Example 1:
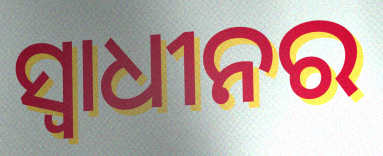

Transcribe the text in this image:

ସ୍ୱାଧୀନର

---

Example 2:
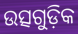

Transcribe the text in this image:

ଉତ୍ସଗୁଡ଼ିକ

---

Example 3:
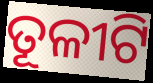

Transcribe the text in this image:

ତୂଳୀଟି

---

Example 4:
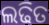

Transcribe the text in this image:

ଲଢିତ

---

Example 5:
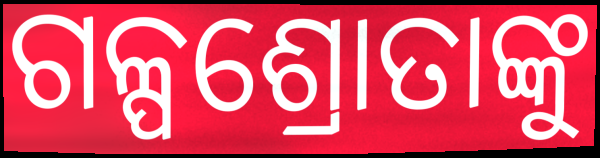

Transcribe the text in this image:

ଗଳ୍ପଶ୍ରୋତାଙ୍କୁ